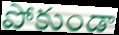
పోకుండా